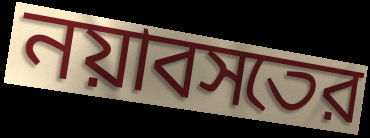
নয়াবসতের